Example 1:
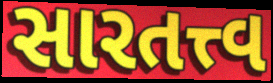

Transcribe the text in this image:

સારતત્ત્વ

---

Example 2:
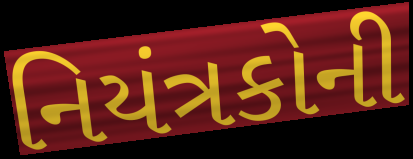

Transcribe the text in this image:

નિયંત્રકોની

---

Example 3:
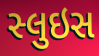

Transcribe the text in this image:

સ્લુઇસ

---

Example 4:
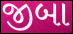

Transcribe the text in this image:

જીબા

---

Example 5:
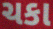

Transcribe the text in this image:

ચકા